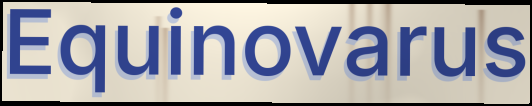
Equinovarus